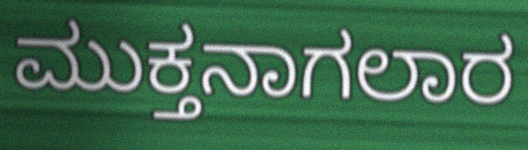
ಮುಕ್ತನಾಗಲಾರ